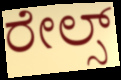
ರೇಲ್ಸ್